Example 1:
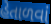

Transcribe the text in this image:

હેતાળવાં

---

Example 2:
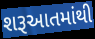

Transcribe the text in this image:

શરૂઆતમાંથી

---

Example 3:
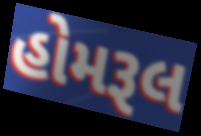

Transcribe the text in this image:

હોમરૂલ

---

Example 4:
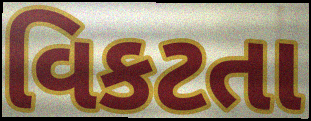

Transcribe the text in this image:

વિકટતા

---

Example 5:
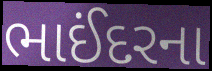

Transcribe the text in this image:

ભાઈંદરના